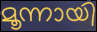
മൂന്നായി